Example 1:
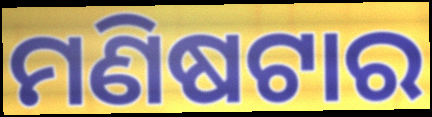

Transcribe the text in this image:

ମଣିଷଟାର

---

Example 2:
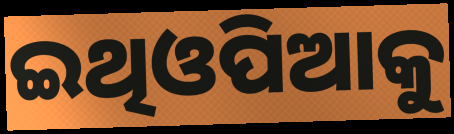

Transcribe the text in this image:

ଇଥିଓପିଆକୁ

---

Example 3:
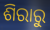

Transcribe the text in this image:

ଶିରାରୁ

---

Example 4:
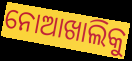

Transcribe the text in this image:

ନୋଆଖାଲିକୁ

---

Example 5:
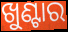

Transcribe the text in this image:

ଖୁଣ୍ଟାର